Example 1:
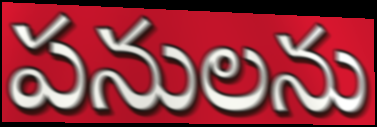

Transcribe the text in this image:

పనులను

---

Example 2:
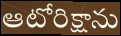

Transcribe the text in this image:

ఆటోరిక్షాను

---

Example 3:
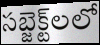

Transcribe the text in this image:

సబ్జెక్ట్‌లలో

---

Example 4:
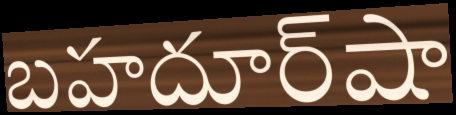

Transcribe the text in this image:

బహదూర్‌షా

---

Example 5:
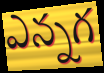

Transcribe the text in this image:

ఎన్నగ